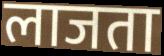
लाजता